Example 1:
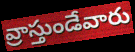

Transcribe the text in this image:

వ్రాస్తుండేవారు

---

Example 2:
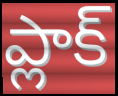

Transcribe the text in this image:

ప్లాక్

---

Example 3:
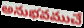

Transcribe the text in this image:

అనుభవముచే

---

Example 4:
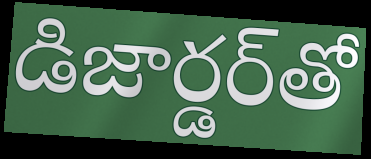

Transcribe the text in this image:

డిజార్డర్‌తో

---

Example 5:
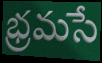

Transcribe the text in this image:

భ్రమసే